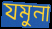
যমুনা